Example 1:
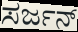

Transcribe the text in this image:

ಸರ್ಜನ್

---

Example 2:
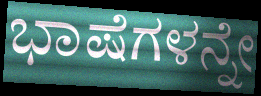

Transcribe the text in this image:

ಭಾಷೆಗಳನ್ನೇ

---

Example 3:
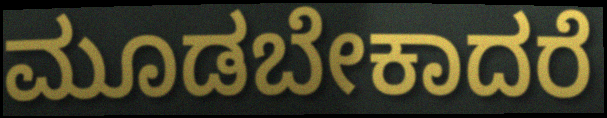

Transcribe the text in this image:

ಮೂಡಬೇಕಾದರೆ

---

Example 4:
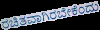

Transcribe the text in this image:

ರಚಿತವಾಗಿರಬೇಕೆಂದು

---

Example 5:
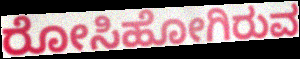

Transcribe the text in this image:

ರೋಸಿಹೋಗಿರುವ